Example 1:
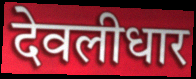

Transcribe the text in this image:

देवलीधार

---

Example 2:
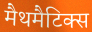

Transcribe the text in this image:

मैथमैटिक्स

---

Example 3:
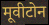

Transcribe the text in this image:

मूवीटोन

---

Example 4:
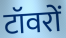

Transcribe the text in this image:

टॉवरों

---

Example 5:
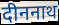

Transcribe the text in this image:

दीननाथ